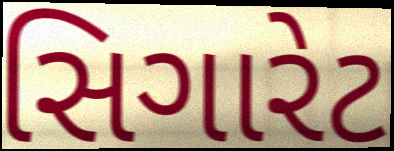
સિગારેટ